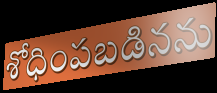
శోధింపబడినను